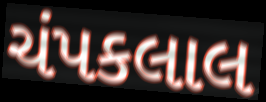
ચંપકલાલ